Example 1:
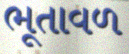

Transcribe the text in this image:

ભૂતાવળ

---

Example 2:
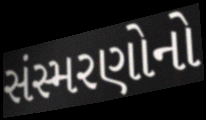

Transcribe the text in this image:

સંસ્મરણોનો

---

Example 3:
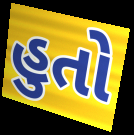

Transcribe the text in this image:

હુતો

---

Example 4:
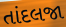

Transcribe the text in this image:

તાંદલજા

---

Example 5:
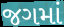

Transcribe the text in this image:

જગમાં